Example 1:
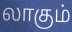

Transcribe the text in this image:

லாகும்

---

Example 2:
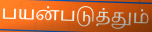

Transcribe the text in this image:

பயன்படுத்தும்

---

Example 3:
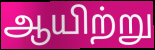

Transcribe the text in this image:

ஆயிற்று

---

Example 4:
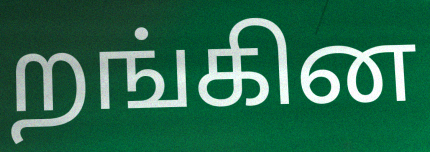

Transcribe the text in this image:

றங்கின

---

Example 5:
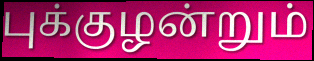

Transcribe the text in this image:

புக்குழன்றும்